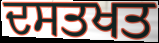
ਦਸਤਖਤ